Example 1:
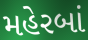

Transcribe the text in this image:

મહેરબાં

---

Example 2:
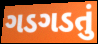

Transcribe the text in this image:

ગડગડતું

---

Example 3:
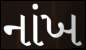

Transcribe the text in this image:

નાંખ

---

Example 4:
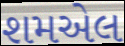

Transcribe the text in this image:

શમએલ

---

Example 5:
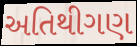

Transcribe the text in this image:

અતિથીગણ